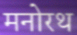
मनोरथ